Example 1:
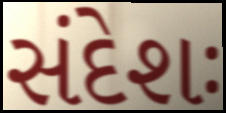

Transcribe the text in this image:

સંદેશઃ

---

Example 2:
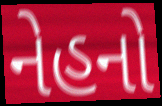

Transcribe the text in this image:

નેહનો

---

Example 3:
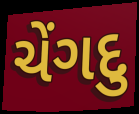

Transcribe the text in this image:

ચેંગદુ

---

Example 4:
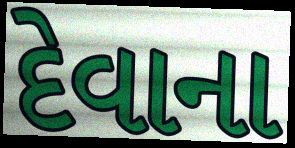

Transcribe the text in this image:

દેવાના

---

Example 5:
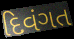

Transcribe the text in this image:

દિવંગત